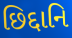
છિદ્દાનિ